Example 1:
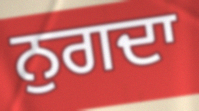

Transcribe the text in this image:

ਨੁਗਦਾ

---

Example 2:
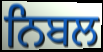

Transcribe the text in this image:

ਨਿਬਲ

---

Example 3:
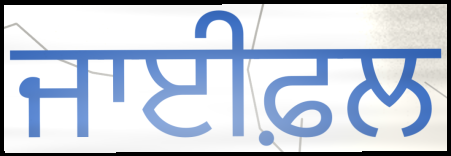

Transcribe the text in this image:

ਜਾਈਫ਼ਲ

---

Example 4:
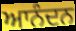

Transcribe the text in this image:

ਆਨੰਦਨ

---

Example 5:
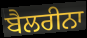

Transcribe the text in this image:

ਬੈਲਰੀਨਾ